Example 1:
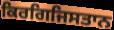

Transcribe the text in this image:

ਕਿਰਗਿਜਿਸਤਾਨ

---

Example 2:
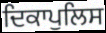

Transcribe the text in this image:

ਦਿਕਾਪੁਲਿਸ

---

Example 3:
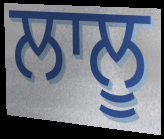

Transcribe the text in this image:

ਲਾਲੂ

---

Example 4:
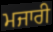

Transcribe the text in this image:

ਮਜਾਰੀ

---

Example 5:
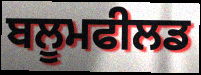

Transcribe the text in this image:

ਬਲੂਮਫੀਲਡ